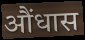
औंधास